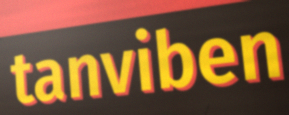
tanviben